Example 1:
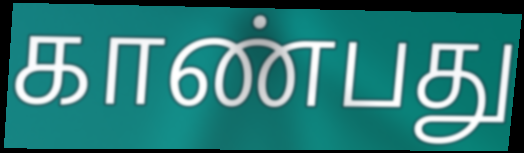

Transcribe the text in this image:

காண்பது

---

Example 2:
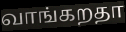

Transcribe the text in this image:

வாங்கறதா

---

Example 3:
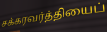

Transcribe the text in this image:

சக்கரவர்த்தியைப்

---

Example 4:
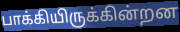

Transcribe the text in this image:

பாக்கியிருக்கின்றன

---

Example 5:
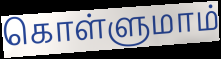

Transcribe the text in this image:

கொள்ளுமாம்